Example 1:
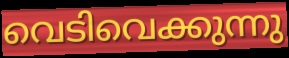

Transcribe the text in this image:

വെടിവെക്കുന്നു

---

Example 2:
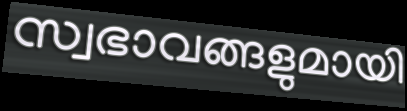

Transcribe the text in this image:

സ്വഭാവങ്ങളുമായി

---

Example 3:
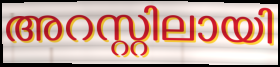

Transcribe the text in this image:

അറസ്റ്റിലായി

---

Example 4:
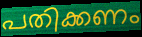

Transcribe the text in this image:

പതിക്കണം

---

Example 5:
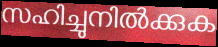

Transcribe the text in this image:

സഹിച്ചുനിൽക്കുക